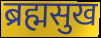
ब्रह्मसुख